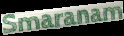
Smaranam